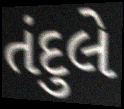
તંદુલે